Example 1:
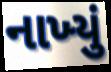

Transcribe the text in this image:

નાખ્‍યું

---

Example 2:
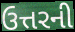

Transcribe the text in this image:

ઉત્તરની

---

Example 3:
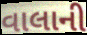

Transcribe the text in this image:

વાલાની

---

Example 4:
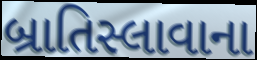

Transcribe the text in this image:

બ્રાતિસ્લાવાના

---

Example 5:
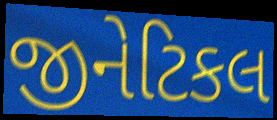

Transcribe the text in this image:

જીનેટિકલ